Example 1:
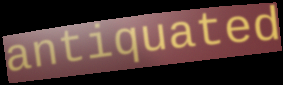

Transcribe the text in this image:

antiquated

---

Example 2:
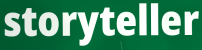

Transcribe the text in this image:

storyteller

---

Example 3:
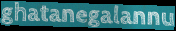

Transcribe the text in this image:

ghatanegalannu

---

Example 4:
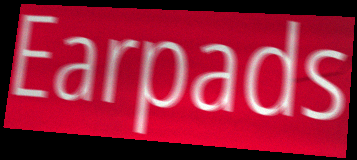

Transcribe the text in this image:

Earpads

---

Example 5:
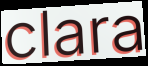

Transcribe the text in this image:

clara